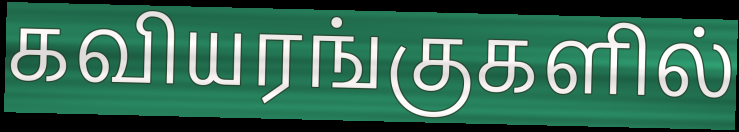
கவியரங்குகளில்